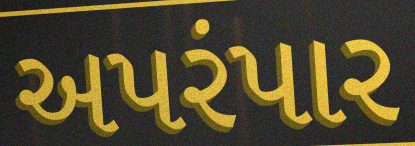
અપરંપાર